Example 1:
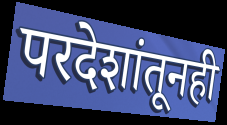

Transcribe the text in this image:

परदेशांतूनही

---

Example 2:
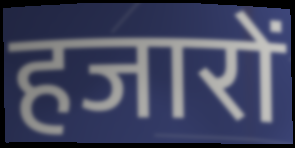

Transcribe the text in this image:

हजारों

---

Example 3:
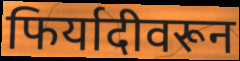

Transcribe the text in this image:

फिर्यादीवरून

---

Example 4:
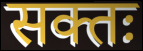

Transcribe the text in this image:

सक्तः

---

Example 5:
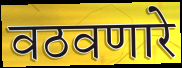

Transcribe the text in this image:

वठवणारे